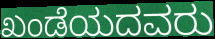
ಖಂಡೆಯದವರು